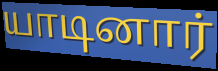
யாடினார்